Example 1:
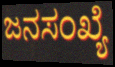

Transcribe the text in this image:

ಜನಸಂಖ್ಯೆ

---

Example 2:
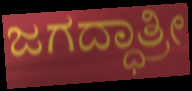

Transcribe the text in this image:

ಜಗದ್ಧಾತ್ರೀ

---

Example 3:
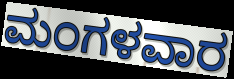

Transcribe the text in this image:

ಮಂಗಳವಾರ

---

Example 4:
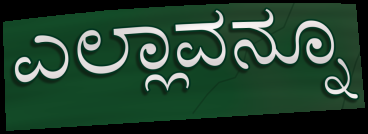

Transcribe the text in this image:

ಎಲ್ಲಾವನ್ನೂ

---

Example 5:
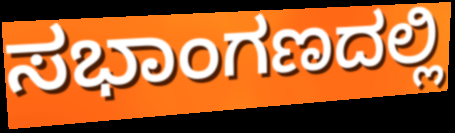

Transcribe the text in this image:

ಸಭಾಂಗಣದಲ್ಲಿ